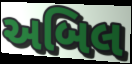
અબિલ